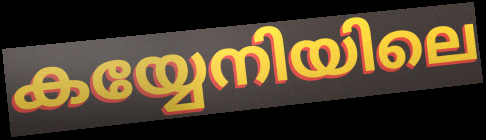
കയ്യേനിയിലെ